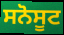
ਸਨੋਸੂਟ